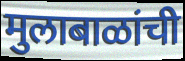
मुलाबाळांची